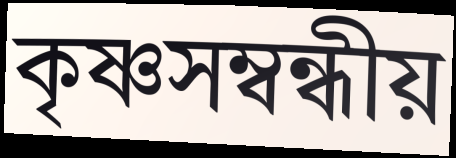
কৃষ্ণসম্বন্ধীয়